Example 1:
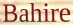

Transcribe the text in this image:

Bahire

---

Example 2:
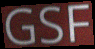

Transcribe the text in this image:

GSF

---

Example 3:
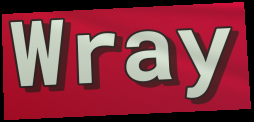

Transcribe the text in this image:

Wray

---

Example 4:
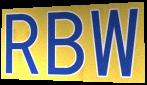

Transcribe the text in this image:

RBW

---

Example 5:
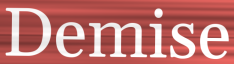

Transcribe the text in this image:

Demise